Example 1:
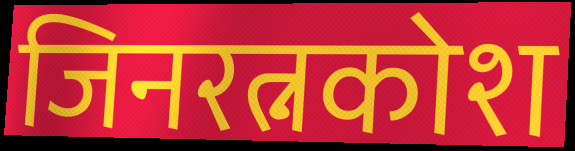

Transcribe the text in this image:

जिनरत्नकोश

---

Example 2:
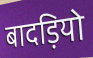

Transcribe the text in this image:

बादड़ियो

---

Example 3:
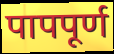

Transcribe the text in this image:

पापपूर्ण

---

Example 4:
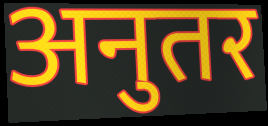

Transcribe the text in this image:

अनुतर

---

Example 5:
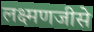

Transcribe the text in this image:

लक्ष्मणजीसे